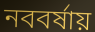
নববর্ষায়